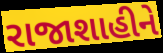
રાજાશાહીને